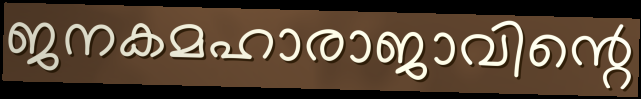
ജനകമഹാരാജാവിന്റെ